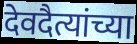
देवदैत्यांच्या